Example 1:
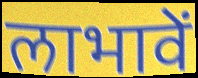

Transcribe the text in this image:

लाभावें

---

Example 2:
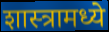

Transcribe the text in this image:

शास्त्रामध्ये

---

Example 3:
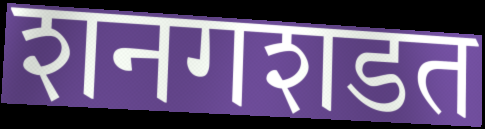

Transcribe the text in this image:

शनगशडत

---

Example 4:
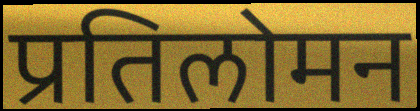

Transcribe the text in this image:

प्रतिलोमन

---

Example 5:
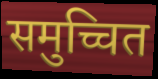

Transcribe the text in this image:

समुच्चित